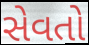
સેવતો